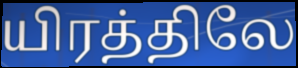
யிரத்திலே